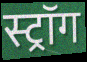
स्ट्रॉग